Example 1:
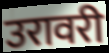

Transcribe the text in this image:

उरावरी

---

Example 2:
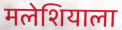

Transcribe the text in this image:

मलेशियाला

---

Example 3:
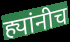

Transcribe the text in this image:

ह्यांनीच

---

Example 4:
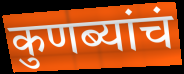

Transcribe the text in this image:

कुणब्यांचं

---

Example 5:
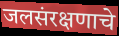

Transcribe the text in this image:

जलसंरक्षणाचे